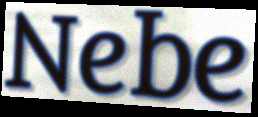
Nebe